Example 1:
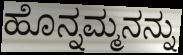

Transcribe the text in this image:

ಹೊನ್ನಮ್ಮನನ್ನು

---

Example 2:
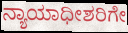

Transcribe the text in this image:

ನ್ಯಾಯಾಧೀಶರಿಗೇ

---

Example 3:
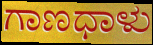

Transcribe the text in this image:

ಗಾಣಧಾಳು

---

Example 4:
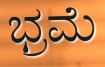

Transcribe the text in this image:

ಭ್ರಮೆ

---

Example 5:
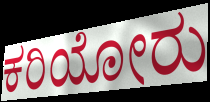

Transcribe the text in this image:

ಕರಿಯೋರು